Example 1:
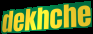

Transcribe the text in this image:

dekhche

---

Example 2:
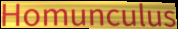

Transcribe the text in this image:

Homunculus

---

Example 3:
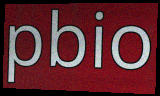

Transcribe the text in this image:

pbio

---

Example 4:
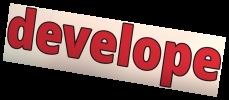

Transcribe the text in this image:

develope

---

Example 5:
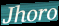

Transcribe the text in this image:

Jhoro